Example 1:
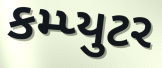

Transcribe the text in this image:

કમ્પ્યુટર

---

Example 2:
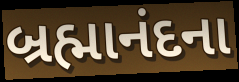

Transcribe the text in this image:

બ્રહ્માનંદના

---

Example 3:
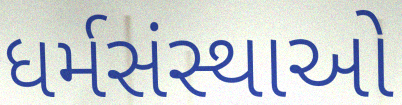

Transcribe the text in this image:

ધર્મસંસ્થાઓ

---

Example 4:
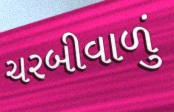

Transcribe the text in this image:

ચરબીવાળું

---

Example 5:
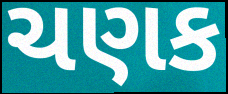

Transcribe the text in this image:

ચણક